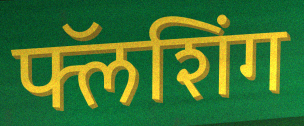
फ्लॅशिंग